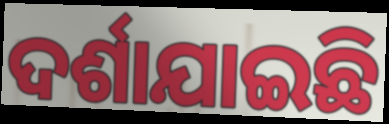
ଦର୍ଶାଯାଇଛି